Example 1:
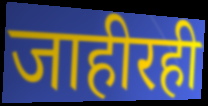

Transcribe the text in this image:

जाहीरही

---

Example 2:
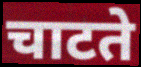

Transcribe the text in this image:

चाटते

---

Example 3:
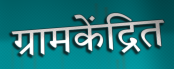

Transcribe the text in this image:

ग्रामकेंद्रित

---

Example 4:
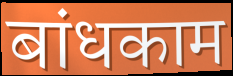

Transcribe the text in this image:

बांधकाम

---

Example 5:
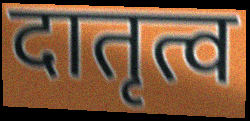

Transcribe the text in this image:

दातृत्व